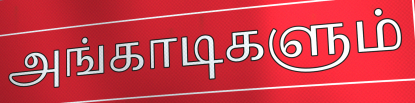
அங்காடிகளும்